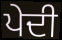
ਪੇਦੀ